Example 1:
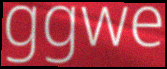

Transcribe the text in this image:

ggwe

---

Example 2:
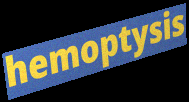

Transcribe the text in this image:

hemoptysis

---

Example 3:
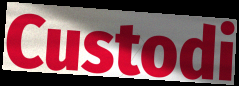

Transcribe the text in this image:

Custodi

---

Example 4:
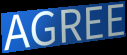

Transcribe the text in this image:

AGREE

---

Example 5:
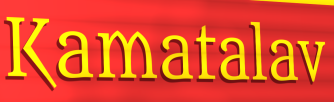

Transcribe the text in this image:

Kamatalav